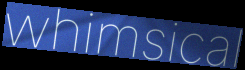
whimsical